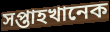
সপ্তাহখানেক